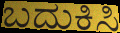
ಬದುಕಿಸಿ